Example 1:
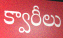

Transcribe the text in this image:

క్వారీలు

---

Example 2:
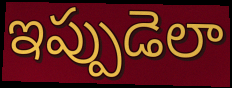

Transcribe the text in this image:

ఇప్పుడెలా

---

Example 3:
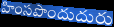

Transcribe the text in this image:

హింసపొందుదురు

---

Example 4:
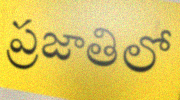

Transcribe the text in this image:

ప్రజాతిలో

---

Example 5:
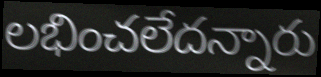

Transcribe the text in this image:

లభించలేదన్నారు